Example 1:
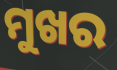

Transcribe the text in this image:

ମୁଖର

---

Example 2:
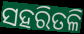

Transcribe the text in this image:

ସହରିତଳି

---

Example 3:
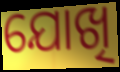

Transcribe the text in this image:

ଯୋଖି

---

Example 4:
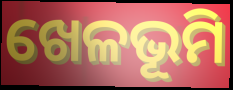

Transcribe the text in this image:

ଖେଳଭୂମି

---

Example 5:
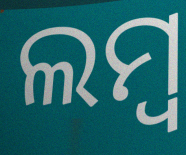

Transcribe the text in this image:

ଲମ୍ୱ